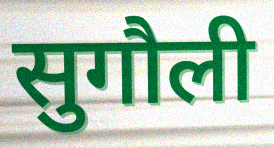
सुगौली